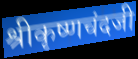
श्रीकृष्णचंदजी